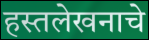
हस्तलेखनाचे